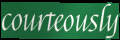
courteously